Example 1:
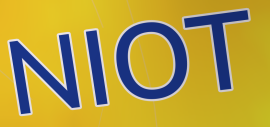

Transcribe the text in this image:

NIOT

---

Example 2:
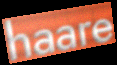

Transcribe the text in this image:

haare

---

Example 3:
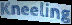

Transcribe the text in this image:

Kneeling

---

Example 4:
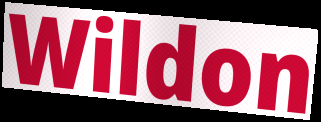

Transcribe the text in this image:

Wildon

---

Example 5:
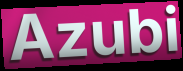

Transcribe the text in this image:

Azubi